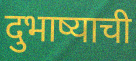
दुभाष्याची